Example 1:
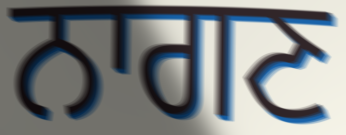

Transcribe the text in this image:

ਨਾਗਣ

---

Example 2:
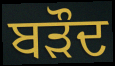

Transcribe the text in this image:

ਬੜੌਦ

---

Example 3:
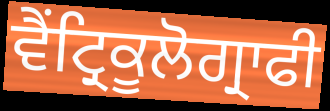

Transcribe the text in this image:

ਵੈਂਟ੍ਰਿਕੂਲੋਗ੍ਰਾਫੀ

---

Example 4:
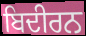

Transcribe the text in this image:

ਬਿਦੀਰਨ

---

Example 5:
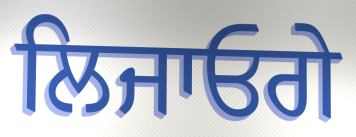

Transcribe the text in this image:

ਲਿਜਾਓਗੇ